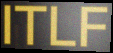
ITLF